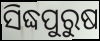
ସିଦ୍ଧପୁରୁଷ